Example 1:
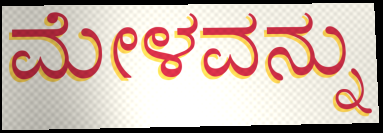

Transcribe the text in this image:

ಮೇಳವನ್ನು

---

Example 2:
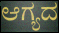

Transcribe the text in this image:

ಆಗ್ಯದ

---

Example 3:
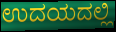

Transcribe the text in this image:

ಉದಯದಲ್ಲಿ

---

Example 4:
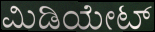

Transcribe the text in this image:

ಮಿಡಿಯೇಟ್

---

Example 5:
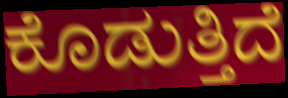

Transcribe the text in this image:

ಕೊಡುತ್ತಿದೆ